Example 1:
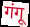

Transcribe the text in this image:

गंगू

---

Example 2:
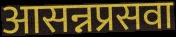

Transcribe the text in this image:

आसन्नप्रसवा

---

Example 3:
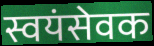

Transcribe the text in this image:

स्वयंसेवक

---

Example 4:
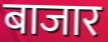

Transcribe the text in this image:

बाजार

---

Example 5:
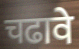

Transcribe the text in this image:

चढावे